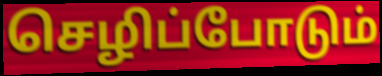
செழிப்போடும்